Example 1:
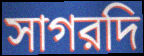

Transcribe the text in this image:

সাগরদি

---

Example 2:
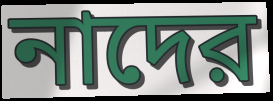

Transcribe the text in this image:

নাদের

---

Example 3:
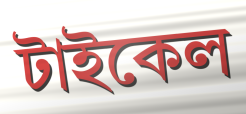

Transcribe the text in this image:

টাইকেল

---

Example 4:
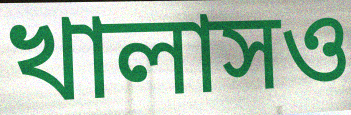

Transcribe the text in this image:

খালাসও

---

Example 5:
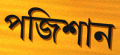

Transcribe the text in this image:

পজিশান